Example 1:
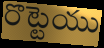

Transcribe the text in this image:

రొట్టెయు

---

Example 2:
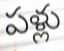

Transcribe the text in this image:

పళ్లు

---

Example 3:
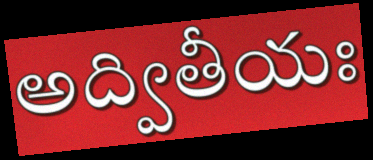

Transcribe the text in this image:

అద్వితీయః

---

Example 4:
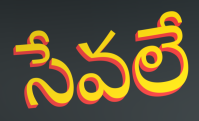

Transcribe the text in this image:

సేవలే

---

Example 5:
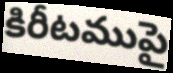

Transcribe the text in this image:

కిరీటముపై